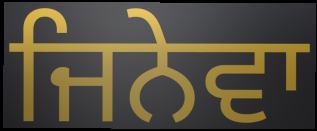
ਜਿਨੇਵਾ